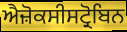
ਐਜ਼ੋਕਸੀਸਟ੍ਰੋਬਿਨ